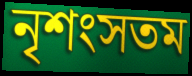
নৃশংসতম